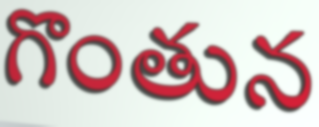
గొంతున